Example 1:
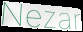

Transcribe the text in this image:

Nezar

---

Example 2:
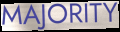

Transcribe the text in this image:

MAJORITY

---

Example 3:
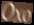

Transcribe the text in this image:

Oxo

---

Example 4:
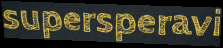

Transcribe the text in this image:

supersperavi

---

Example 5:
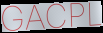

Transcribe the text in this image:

GACPL